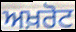
ਅਖ਼ਰੋਟ